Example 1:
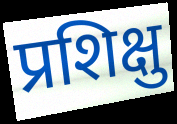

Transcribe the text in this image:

प्रशिक्षु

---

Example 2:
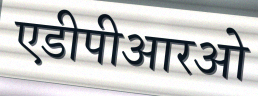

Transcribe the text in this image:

एडीपीआरओ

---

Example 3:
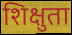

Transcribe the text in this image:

शिक्षुता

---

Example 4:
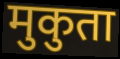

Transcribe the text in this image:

मुकुता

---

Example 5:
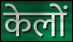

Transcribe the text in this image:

केलों